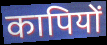
कापियों